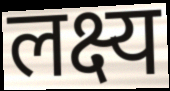
लक्ष्‍य